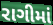
રાગીમાં